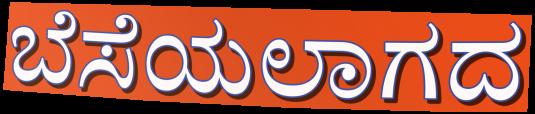
ಬೆಸೆಯಲಾಗದ